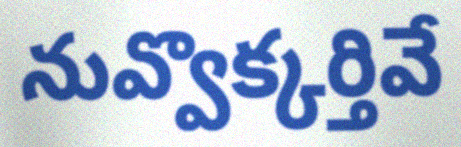
నువ్వొక్కర్తివే